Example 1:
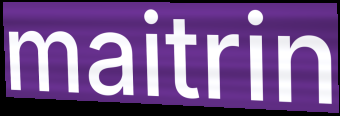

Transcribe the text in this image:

maitrin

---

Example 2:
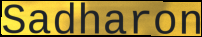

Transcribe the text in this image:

Sadharon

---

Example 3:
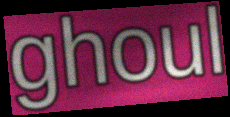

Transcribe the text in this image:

ghoul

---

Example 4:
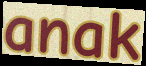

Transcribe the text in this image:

anak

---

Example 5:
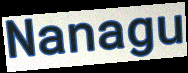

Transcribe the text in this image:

Nanagu